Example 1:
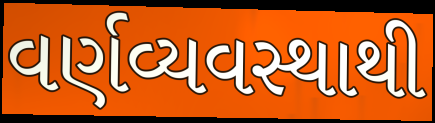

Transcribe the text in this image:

વર્ણવ્યવસ્થાથી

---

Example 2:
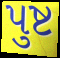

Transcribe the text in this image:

પુષ્ટ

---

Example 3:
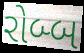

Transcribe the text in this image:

રોબ્બ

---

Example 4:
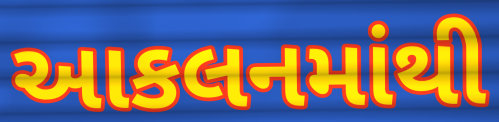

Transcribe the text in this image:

આકલનમાંથી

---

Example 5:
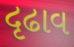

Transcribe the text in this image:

દૃઢાવ